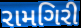
રામગિરી